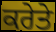
ਕਰੇਤੇ